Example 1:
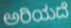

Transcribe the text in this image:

ಅರಿಯದೆ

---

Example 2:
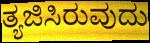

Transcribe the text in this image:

ತ್ಯಜಿಸಿರುವುದು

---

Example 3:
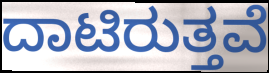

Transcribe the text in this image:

ದಾಟಿರುತ್ತವೆ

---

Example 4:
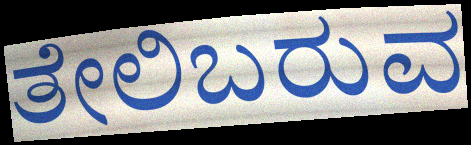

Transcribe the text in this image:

ತೇಲಿಬರುವ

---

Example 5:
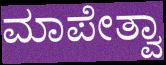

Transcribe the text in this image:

ಮಾಪೇತ್ವಾ